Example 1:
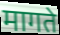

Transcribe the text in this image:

मागते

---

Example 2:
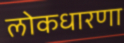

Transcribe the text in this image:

लोकधारणा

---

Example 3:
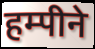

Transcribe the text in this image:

हम्पीने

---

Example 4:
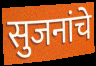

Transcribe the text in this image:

सुजनांचे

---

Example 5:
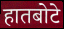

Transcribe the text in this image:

हातबोटे